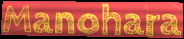
Manohara